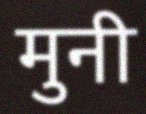
मुनी